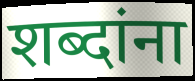
शब्दांना